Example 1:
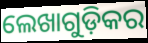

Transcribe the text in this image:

ଲେଖାଗୁଡ଼ିକର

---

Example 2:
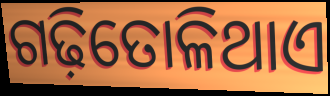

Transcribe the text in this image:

ଗଢ଼ିତୋଳିଥାଏ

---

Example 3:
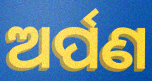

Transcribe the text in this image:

ଅର୍ପଣ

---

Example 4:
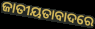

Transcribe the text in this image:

ଜାତୀୟତାବାଦରେ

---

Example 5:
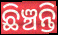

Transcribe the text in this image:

ଛିଞ୍ଚନ୍ତି